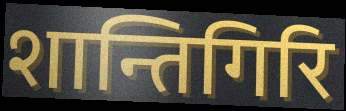
शान्तिगिरि